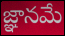
జ్ఞానమే